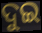
ଦୁଇ